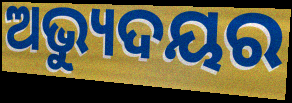
ଅଭ୍ୟୁଦୟର